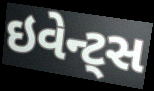
ઇવેન્ટ્સ